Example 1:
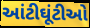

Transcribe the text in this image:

આંટીઘૂંટીઓ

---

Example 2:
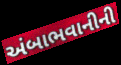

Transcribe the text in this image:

અંબાભવાનીની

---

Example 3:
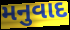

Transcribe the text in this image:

મનુવાદ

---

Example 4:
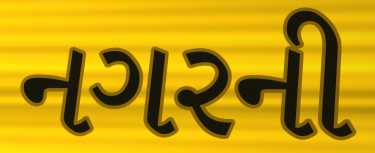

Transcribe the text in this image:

નગરની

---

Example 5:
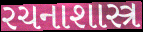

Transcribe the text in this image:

રચનાશાસ્ત્ર